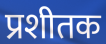
प्रशीतक